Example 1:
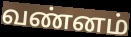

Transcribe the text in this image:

வண்னம்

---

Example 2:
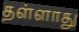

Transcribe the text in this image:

தள்ளாது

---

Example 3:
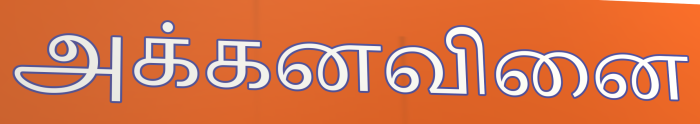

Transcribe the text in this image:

அக்கனவினை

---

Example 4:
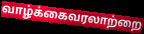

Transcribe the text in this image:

வாழ்க்கைவரலாற்றை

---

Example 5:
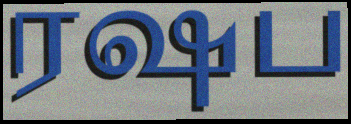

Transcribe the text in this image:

ரஷப